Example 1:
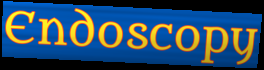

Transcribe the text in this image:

Endoscopy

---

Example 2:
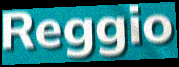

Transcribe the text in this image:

Reggio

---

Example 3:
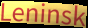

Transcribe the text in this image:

Leninsk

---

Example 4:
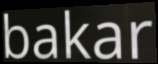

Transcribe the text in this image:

bakar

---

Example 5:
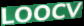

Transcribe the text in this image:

LOOCV